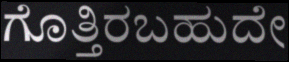
ಗೊತ್ತಿರಬಹುದೇ